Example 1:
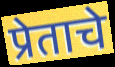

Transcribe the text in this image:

प्रेताचे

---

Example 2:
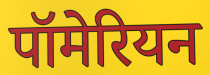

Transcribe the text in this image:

पॉमेरियन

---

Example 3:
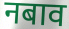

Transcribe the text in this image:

नबाव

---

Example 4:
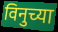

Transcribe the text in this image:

विनुच्या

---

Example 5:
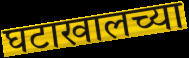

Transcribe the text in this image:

घटाखालच्या